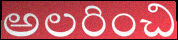
అలరించి